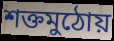
শক্তমুঠোয়